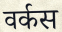
वर्कस